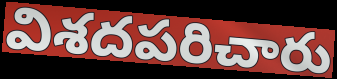
విశదపరిచారు